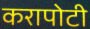
करापोटी